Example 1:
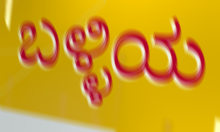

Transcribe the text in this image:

ಬಳ್ಳಿಯ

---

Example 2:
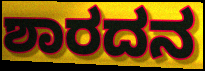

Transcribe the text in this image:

ಶಾರದನ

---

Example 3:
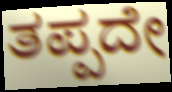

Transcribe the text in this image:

ತಪ್ಪದೇ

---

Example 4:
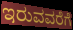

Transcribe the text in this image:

ಇರುವವರೆಗೆ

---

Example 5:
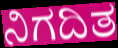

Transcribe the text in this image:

ನಿಗದಿತ